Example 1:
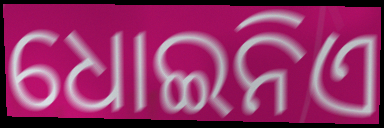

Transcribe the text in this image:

ଧୋଇନିଏ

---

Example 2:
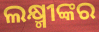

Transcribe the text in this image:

ଲକ୍ଷ୍ମୀଙ୍କର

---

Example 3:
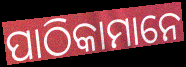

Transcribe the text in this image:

ପାଠିକାମାନେ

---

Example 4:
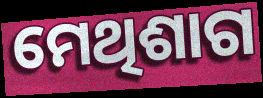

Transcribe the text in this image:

ମେଥିଶାଗ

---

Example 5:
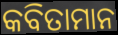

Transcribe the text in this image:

କବିତାମାନ